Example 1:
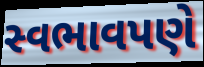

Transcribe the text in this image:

સ્વભાવપણે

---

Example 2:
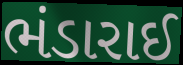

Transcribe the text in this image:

ભંડારાઈ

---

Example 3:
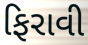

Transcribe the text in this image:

ફિરાવી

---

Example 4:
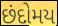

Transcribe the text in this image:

છંદોમય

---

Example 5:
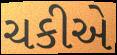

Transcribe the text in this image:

ચકીએ